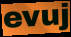
evuj